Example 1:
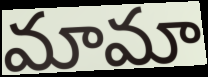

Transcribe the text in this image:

మామా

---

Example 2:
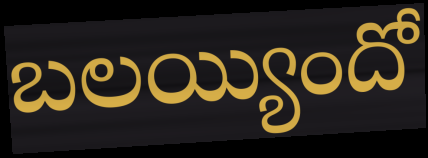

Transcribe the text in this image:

బలయ్యిందో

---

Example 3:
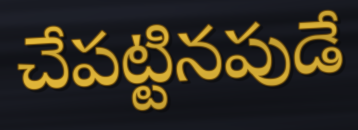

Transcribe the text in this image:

చేపట్టినపుడే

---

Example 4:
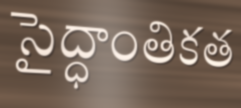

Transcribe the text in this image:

సైద్ధాంతికత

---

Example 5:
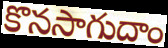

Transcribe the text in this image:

కొనసాగుదాం